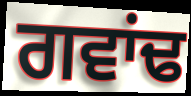
ਗਵਾਂਢ